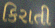
કિરાતી